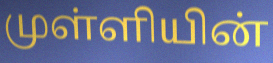
முள்ளியின்